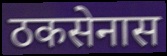
ठकसेनास